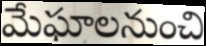
మేఘాలనుంచి